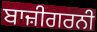
ਬਾਜ਼ੀਗਰਨੀ